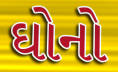
ઘોનો